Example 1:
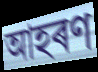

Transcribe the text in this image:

আহৰণ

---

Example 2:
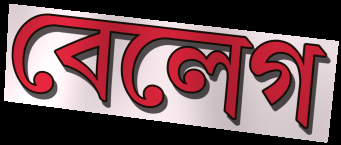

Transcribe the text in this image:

বেলেগ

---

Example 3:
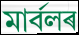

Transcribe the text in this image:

মাৰ্বলৰ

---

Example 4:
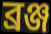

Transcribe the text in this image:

ব্ৰঞ্জ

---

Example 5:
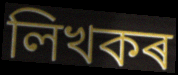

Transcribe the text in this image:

লিখকৰ